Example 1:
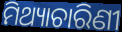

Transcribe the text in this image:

ମିଥ୍ୟାଚାରିଣୀ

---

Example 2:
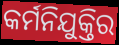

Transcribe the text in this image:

କର୍ମନିଯୁକ୍ତିର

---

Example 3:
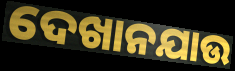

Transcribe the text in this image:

ଦେଖାନଯାଉ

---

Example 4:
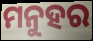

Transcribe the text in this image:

ମନୁହର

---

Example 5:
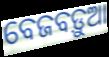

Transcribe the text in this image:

ବେଜବଡ଼ୁଆ